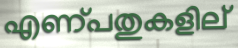
എണ്പതുകളില്